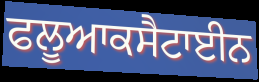
ਫਲੂਆਕਸੈਟਾਈਨ